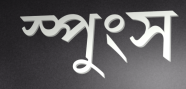
স্পুংস